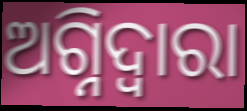
ଅଗ୍ନିଦ୍ଵାରା